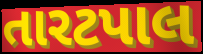
તારટપાલ